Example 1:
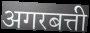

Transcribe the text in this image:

अगरबत्ती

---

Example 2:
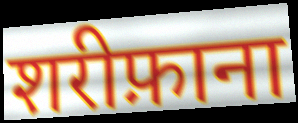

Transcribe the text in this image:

शरीफ़ाना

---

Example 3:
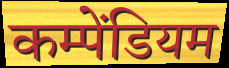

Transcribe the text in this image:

कम्पेंडियम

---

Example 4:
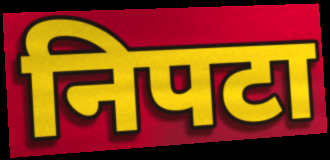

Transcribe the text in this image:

निपटा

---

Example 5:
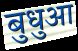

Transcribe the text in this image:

बुधुआ